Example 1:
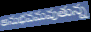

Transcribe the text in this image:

అనుభవమవుతున్న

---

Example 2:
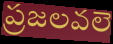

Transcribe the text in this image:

ప్రజలవలె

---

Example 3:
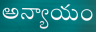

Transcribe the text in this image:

అన్యాయం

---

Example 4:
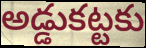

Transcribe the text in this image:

అడ్డుకట్టకు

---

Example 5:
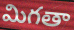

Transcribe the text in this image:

మిగతా